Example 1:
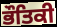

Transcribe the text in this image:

ਭੌਤਿਕੀ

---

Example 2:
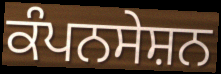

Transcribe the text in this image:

ਕੰਪਨਸੇਸ਼ਨ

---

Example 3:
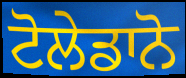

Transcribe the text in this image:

ਟੋਲੇਡਾਨੋ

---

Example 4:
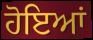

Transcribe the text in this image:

ਹੋਇਆਂ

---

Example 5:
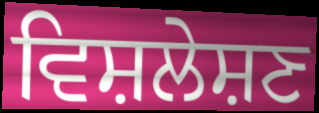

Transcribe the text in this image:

ਵਿਸ਼ਲੇਸ਼ਣ